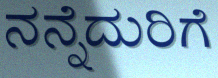
ನನ್ನೆದುರಿಗೆ